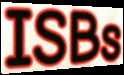
ISBs